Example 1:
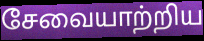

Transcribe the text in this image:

சேவையாற்றிய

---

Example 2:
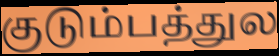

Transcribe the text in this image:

குடும்பத்துல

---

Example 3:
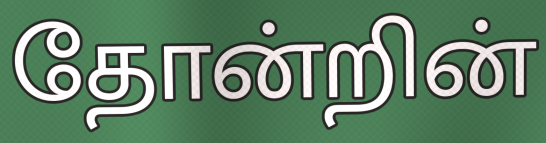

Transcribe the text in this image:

தோன்றின்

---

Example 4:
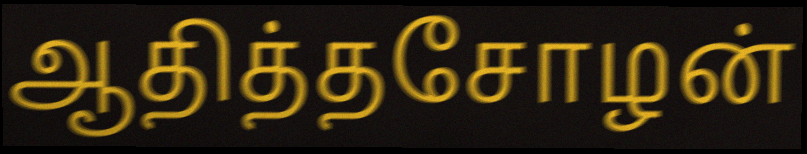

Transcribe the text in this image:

ஆதித்தசோழன்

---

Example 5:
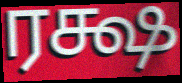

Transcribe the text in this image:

ரக்ஷ